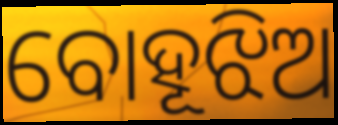
ବୋହୂଝିଅ